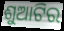
ଶୁଆଟିର